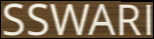
SSWARI